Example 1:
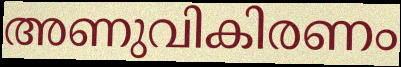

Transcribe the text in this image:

അണുവികിരണം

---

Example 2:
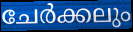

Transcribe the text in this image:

ചേർക്കലും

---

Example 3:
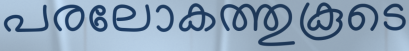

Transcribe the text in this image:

പരലോകത്തുകൂടെ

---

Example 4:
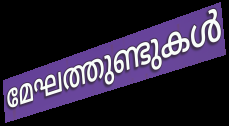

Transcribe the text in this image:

മേഘത്തുണ്ടുകൾ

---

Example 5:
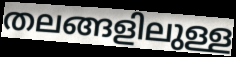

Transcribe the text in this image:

തലങ്ങളിലുള്ള